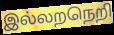
இல்லறநெறி